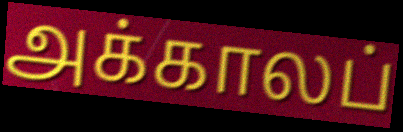
அக்காலப்